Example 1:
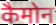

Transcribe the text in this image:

कैमोन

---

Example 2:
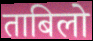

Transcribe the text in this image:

ताबिलो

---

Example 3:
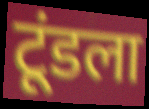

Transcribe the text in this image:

टूंडला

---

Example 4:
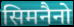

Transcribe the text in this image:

सिमनैनो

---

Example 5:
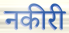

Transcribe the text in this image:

नकीरी